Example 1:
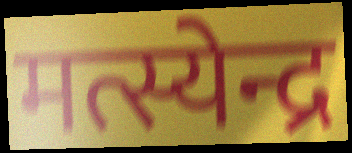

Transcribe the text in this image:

मत्स्येन्द्र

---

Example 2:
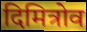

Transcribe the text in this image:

दिमित्रोव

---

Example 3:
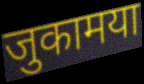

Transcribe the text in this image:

जुकामया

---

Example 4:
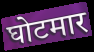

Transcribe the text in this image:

घोटमार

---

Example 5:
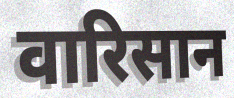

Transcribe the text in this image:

वारिसान